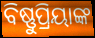
ବିଷ୍ଣୁପ୍ରିୟାଙ୍କ